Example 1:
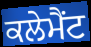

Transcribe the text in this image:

ਕਲੇਮੈਂਟ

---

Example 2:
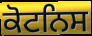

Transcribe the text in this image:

ਕੋਟਨਿਸ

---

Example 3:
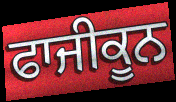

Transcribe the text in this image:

ਫਾਜੀਕੂਨ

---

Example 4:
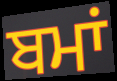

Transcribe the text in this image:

ਬਮਾਂ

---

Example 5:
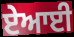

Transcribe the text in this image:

ਏਆਈ